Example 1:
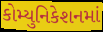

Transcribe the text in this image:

કોમ્યુનિકેશનમાં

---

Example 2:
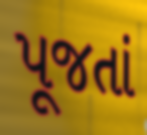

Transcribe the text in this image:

પૂજતાં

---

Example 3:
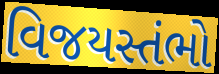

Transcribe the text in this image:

વિજયસ્તંભો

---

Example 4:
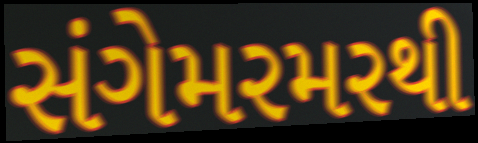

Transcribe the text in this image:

સંગેમરમરથી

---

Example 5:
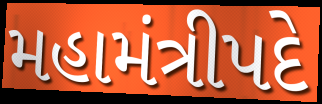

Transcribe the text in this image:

મહામંત્રીપદે